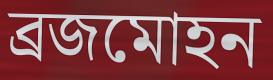
ব্ৰজমোহন